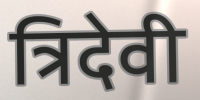
त्रिदेवी